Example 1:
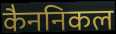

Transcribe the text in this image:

कैननिकल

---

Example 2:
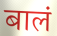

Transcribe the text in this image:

बालं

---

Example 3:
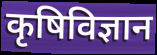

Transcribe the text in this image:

कृषिविज्ञान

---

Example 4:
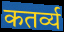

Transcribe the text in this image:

कतर्व्य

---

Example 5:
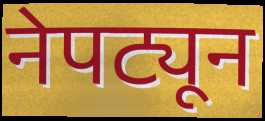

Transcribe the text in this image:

नेपट्यून